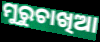
ମୁରୁଚାଖିଆ